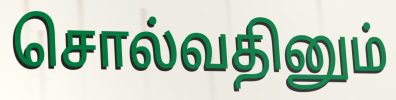
சொல்வதினும்